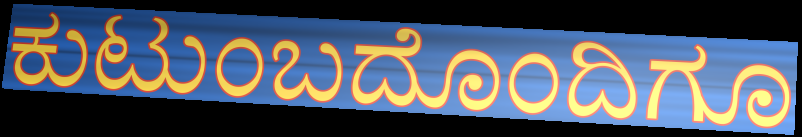
ಕುಟುಂಬದೊಂದಿಗೂ